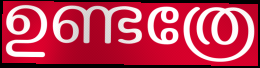
ഉണ്ടത്രേ